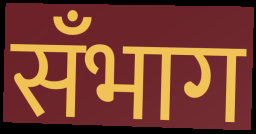
सँभाग